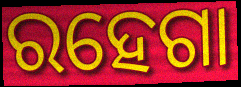
ରହେଗା